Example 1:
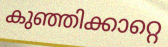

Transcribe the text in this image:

കുഞ്ഞിക്കാറ്റെ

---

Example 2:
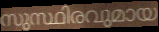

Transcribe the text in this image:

സുസ്ഥിരവുമായ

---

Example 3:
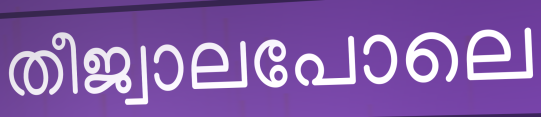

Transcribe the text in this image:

തീജ്വാലപോലെ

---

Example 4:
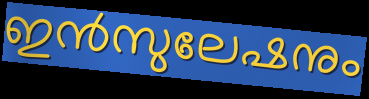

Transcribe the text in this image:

ഇൻസുലേഷനും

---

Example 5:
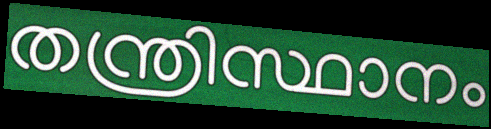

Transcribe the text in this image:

തന്ത്രിസ്ഥാനം